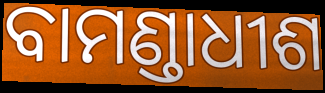
ବାମଣ୍ଡାଧୀଶ